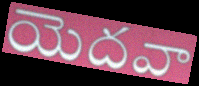
యెదవా